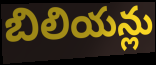
బిలియన్లు